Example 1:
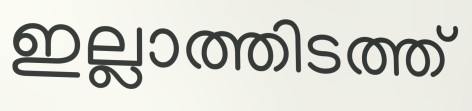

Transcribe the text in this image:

ഇല്ലാത്തിടത്ത്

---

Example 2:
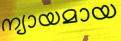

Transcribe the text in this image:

ന്യായമായ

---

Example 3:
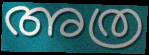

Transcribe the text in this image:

അത്ര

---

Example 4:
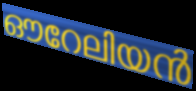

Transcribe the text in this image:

ഔറേലിയൻ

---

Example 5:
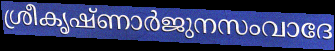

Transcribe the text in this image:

ശ്രീകൃഷ്ണാർജുനസംവാദേ